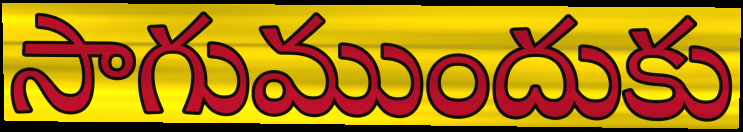
సాగుముందుకు